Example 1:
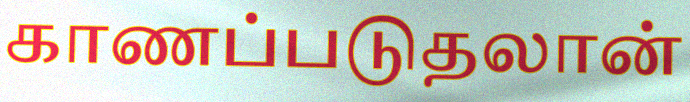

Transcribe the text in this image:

காணப்படுதலான்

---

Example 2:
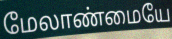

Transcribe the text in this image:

மேலாண்மையே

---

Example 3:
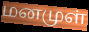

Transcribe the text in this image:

மனமுள்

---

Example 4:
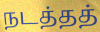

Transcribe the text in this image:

நடத்தத்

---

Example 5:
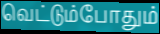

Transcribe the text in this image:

வெட்டும்போதும்